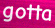
gotta